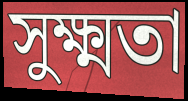
সুক্ষ্মতা